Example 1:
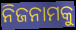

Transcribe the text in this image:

ନିଜନାମକୁ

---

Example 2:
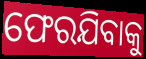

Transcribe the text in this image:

ଫେରଯିବାକୁ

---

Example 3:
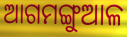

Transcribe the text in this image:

ଆଗମଙ୍ଗୁଆଳ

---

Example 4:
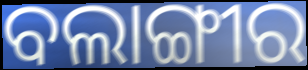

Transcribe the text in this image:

ବଲାଙ୍ଗୀର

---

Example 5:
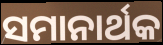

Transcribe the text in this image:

ସମାନାର୍ଥକ